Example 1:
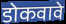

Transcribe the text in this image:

डोकवावे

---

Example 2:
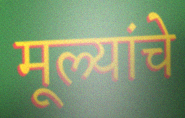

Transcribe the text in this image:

मूल्यांचे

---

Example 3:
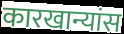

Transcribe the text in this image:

कारखान्यांस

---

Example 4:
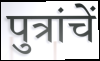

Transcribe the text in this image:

पुत्रांचें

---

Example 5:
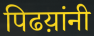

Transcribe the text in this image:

पिढय़ांनी